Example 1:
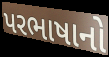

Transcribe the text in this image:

પરભાષાનો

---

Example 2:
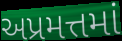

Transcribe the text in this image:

અપ્રમત્તમાં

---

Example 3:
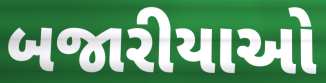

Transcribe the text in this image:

બજારીયાઓ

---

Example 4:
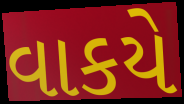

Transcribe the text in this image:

વાકયે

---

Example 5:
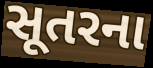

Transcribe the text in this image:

સૂતરના